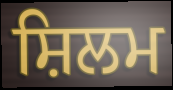
ਸ਼ਿਲਮ